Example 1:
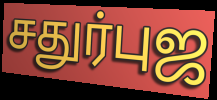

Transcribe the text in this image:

சதுர்புஜ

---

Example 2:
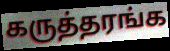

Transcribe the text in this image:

கருத்தரங்க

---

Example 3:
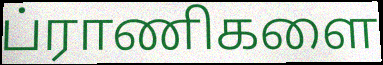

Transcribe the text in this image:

ப்ராணிகளை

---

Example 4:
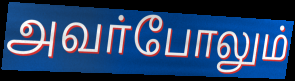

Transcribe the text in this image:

அவர்போலும்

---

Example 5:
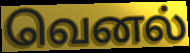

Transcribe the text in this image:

வெனல்